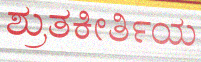
ಶ್ರುತಕೀರ್ತಿಯ